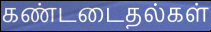
கண்டடைதல்கள்